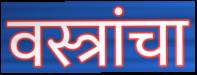
वस्त्रांचा